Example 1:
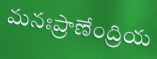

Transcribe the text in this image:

మనఃప్రాణేంద్రియ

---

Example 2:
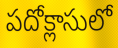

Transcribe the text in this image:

పదోక్లాసులో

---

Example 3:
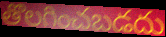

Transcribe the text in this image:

తొలగించబడదు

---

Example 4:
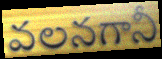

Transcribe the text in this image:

వలనగానీ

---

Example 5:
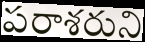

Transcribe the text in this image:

పరాశరుని